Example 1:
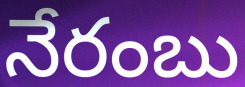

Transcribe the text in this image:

నేరంబు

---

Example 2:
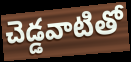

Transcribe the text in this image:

చెడ్డవాటితో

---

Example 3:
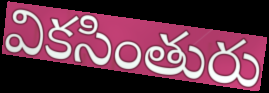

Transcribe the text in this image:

వికసింతురు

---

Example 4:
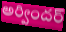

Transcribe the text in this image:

అర్విందర్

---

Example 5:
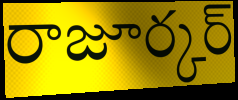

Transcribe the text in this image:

రాజూర్కర్